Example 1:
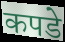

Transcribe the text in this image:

कपडे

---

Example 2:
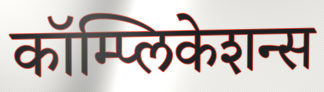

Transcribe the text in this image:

कॉम्प्लिकेशन्स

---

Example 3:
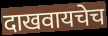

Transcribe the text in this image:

दाखवायचेच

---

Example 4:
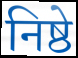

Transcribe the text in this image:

निष्ठे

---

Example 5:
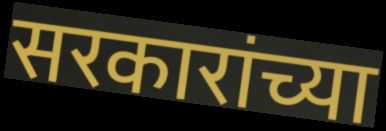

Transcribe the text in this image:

सरकारांच्या